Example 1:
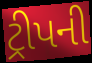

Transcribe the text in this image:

ટ્રીપની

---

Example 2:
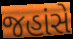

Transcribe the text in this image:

જહાંસે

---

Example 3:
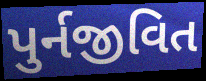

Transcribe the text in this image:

પુર્નજીવિત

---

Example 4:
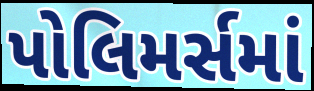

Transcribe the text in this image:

પોલિમર્સમાં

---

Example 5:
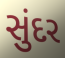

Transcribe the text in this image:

સુંદર